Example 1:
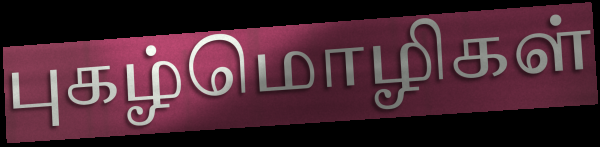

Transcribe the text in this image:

புகழ்மொழிகள்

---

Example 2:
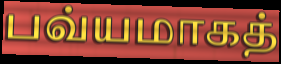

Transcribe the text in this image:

பவ்யமாகத்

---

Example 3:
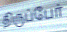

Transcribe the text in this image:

திருப்பேர்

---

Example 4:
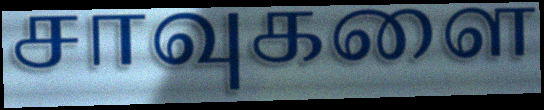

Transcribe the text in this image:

சாவுகளை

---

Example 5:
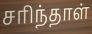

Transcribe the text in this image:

சரிந்தாள்